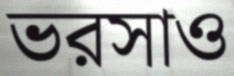
ভরসাও